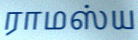
ராமஸ்ய